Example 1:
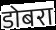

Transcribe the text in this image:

डोबरा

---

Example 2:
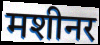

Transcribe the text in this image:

मशीनर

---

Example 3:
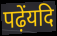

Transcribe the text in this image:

पढ़ेंयदि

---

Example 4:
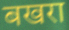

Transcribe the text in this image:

बखरा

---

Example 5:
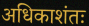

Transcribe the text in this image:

अधिकाशंतः